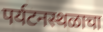
पर्यटनस्थळाचा